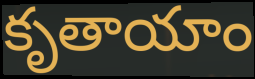
కృతాయాం